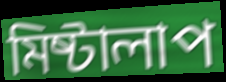
মিষ্টালাপ